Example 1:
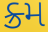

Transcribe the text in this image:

ક્ર્મ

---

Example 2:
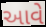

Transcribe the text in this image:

આવે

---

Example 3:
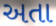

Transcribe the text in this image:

અતા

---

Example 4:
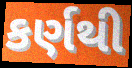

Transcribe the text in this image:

કર્ણથી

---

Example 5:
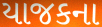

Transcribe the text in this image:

યાજકના